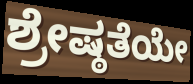
ಶ್ರೇಷ್ಠತೆಯೇ